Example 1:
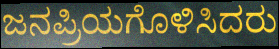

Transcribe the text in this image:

ಜನಪ್ರಿಯಗೊಳಿಸಿದರು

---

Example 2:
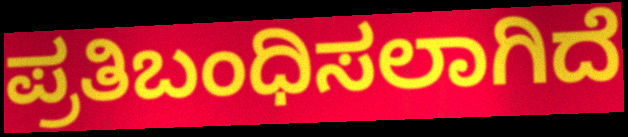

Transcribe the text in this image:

ಪ್ರತಿಬಂಧಿಸಲಾಗಿದೆ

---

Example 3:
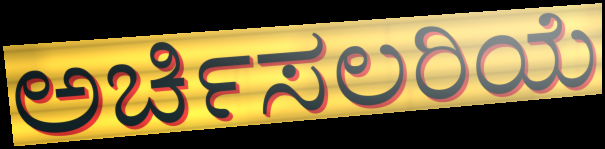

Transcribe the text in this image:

ಅರ್ಚಿಸಲರಿಯೆ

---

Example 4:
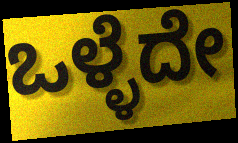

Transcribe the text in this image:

ಒಳ್ಳೆದೇ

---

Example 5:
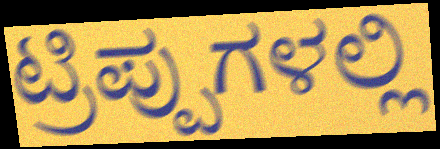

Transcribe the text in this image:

ಟ್ರಿಪ್ಪುಗಳಲ್ಲಿ